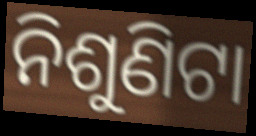
ନିଶୁଣିଟା